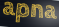
apna